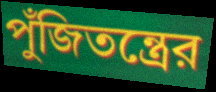
পুঁজিতন্ত্রের